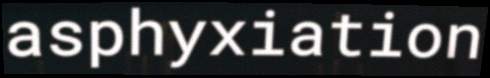
asphyxiation